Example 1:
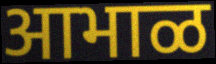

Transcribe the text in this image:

आभाळ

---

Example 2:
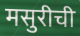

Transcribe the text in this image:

मसुरीची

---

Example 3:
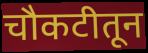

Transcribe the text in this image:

चौकटीतून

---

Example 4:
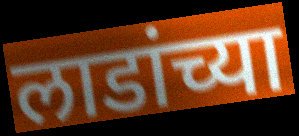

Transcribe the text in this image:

लाडांच्या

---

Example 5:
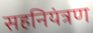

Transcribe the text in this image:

सहनियंत्रण